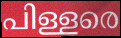
പിള്ളരെ